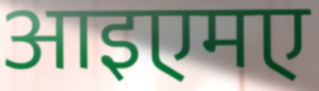
आइएमए